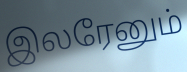
இலரேனும்